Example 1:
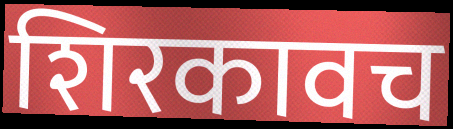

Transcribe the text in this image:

शिरकावच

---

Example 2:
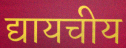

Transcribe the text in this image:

द्यायचीय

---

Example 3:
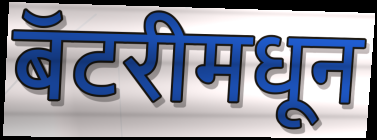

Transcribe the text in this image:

बॅटरीमधून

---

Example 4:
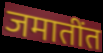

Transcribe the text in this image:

जमातींत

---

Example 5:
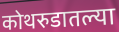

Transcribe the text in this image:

कोथरुडातल्या